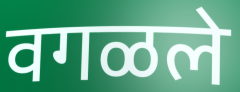
वगळले